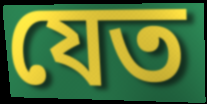
যেত